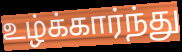
உழ்க்கார்ந்து